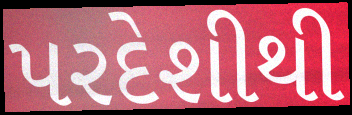
પરદેશીથી